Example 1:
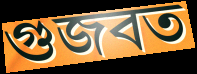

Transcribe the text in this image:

গুজবত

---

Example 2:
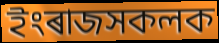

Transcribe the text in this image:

ইংৰাজসকলক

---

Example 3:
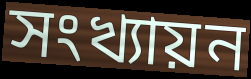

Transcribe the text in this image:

সংখ্যায়ন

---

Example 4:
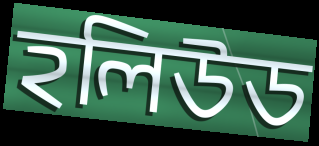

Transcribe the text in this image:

হলিউড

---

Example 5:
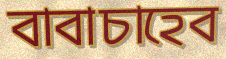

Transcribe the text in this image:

বাবাচাহেব